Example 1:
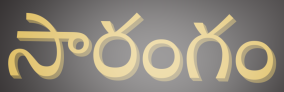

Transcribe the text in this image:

సారంగం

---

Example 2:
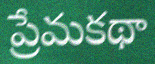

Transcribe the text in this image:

ప్రేమకథా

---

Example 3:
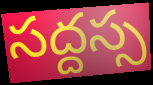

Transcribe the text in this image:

సద్దస్స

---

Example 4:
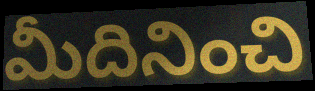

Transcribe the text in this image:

మీదినించి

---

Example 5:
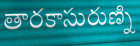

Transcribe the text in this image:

తారకాసురుణ్ని